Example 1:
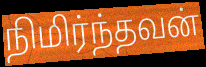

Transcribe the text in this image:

நிமிர்ந்தவன்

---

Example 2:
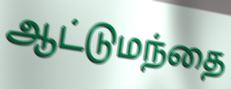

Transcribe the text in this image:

ஆட்டுமந்தை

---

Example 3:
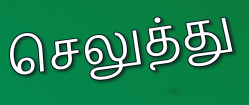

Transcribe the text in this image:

செலுத்து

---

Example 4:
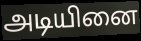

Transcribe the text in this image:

அடியினை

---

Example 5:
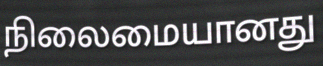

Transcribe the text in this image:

நிலைமையானது